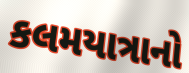
કલમયાત્રાનો